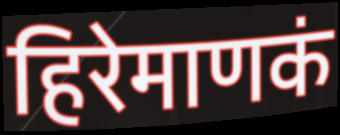
हिरेमाणकं